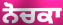
ਨੋਚਕਾ